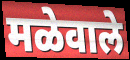
मळेवाले